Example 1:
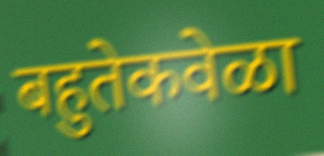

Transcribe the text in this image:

बहुतेकवेळा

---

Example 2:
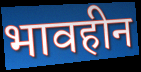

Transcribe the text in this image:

भावहीन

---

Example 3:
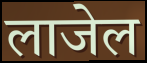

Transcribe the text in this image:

लाजेल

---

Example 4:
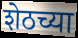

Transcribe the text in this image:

शेठच्या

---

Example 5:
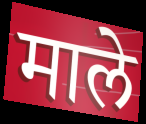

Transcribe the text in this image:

माले